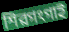
শিৱগংগাই